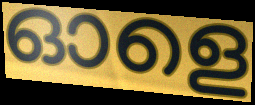
ഓളെ